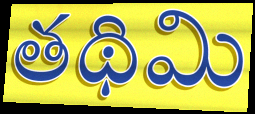
తథిమి